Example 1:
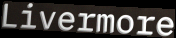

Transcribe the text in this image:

Livermore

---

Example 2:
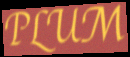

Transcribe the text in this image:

PLUM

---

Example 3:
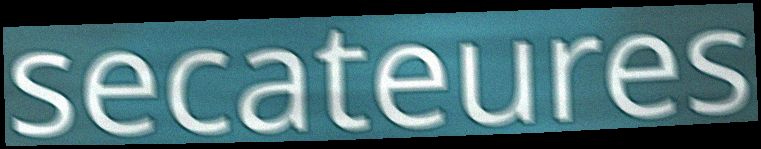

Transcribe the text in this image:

secateures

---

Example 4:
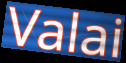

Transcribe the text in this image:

Valai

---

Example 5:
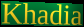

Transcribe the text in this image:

Khadia